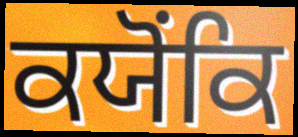
ਕਯੋਂਕਿ